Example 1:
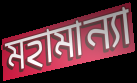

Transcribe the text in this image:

মহামান্যা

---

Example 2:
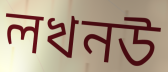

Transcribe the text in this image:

লখনউ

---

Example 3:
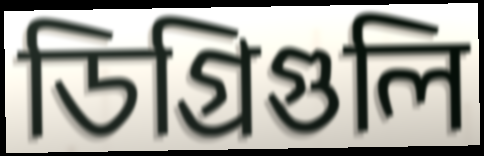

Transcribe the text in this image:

ডিগ্রিগুলি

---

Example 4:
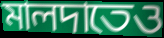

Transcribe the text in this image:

মালদাতেও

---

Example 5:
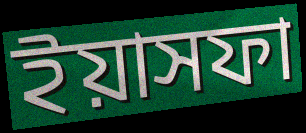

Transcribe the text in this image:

ইয়াসফা